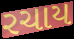
રચાય